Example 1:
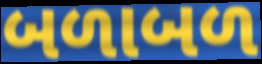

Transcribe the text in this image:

બળાબળ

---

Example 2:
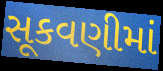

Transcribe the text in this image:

સૂકવણીમાં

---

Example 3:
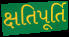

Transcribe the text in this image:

ક્ષતિપૂર્તિ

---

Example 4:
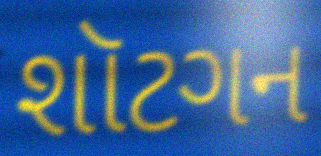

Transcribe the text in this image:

શૉટગન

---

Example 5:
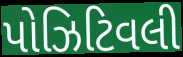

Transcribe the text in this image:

પોઝિટિવલી